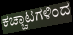
ಕಚ್ಚಾಟಗಳಿಂದ